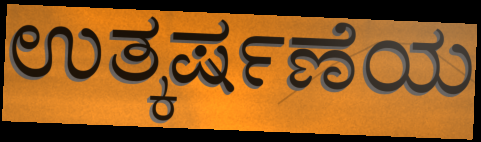
ಉತ್ಕರ್ಷಣೆಯ